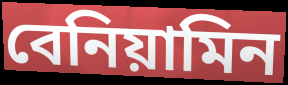
বেনিয়ামিন